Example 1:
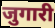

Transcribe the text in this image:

जुगारी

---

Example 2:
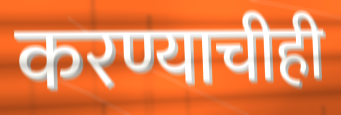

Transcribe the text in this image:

करण्याचीही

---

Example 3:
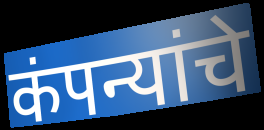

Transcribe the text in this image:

कंपन्यांचे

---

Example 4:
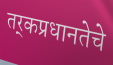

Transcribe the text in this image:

तर्कप्रधानतेचे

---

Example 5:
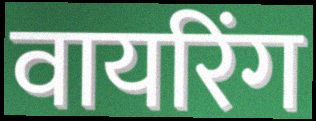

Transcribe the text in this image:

वायरिंग